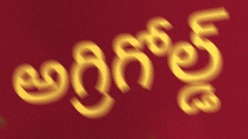
అగ్రిగోల్డ్